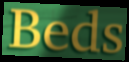
Beds